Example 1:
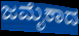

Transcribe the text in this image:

ಜಮೈಕಾದ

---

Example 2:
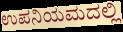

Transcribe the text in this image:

ಉಪನಿಯಮದಲ್ಲಿ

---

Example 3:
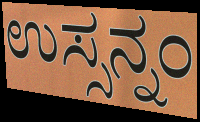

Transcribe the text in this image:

ಉಸ್ಸನ್ನಂ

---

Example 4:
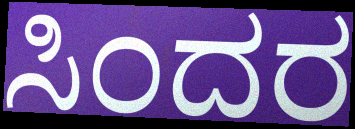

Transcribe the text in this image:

ಸಿಂದರ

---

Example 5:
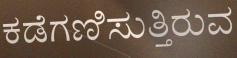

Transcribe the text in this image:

ಕಡೆಗಣಿಸುತ್ತಿರುವ